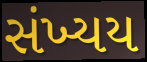
સંખ્યય